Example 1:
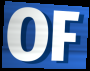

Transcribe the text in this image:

OF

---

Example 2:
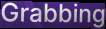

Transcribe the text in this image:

Grabbing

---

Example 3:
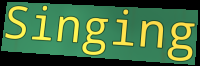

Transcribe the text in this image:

Singing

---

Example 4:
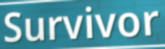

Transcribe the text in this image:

Survivor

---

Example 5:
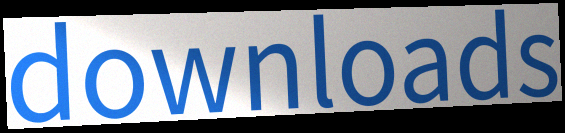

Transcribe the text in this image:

downloads